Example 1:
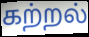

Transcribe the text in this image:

கற்றல்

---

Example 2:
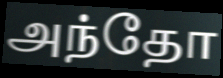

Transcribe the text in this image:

அந்தோ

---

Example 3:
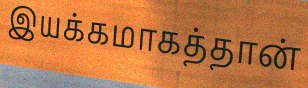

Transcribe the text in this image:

இயக்கமாகத்தான்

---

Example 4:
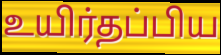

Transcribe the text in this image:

உயிர்தப்பிய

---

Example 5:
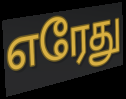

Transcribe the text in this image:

எரேது